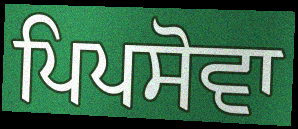
ਪਿਪਸੋਵਾ